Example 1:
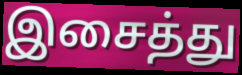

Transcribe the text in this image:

இசைத்து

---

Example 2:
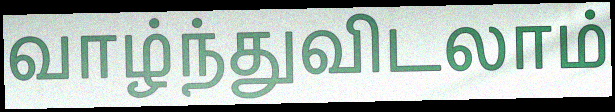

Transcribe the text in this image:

வாழ்ந்துவிடலாம்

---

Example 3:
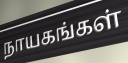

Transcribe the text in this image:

நாயகங்கள்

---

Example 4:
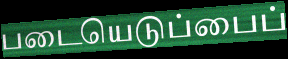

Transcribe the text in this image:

படையெடுப்பைப்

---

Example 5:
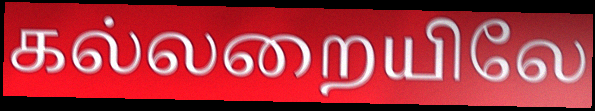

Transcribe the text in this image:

கல்லறையிலே